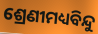
ଶ୍ରେଣୀମଧ୍ୟବିନ୍ଦୁ